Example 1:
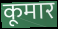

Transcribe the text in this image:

कूमार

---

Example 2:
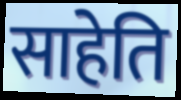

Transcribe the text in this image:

साहेति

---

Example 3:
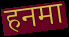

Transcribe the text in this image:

हनमा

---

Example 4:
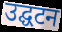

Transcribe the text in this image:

उद्घटन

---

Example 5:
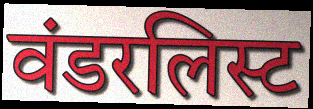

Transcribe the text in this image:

वंडरलिस्ट